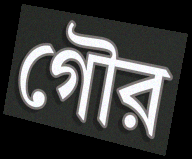
গৌর